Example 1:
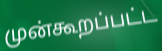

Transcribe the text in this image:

முன்கூறப்பட்ட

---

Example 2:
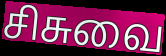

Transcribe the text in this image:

சிசுவை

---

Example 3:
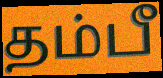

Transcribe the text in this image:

தம்பீ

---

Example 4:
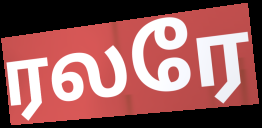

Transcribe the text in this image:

ரலரே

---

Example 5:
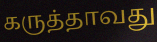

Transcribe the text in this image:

கருத்தாவது